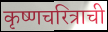
कृष्णचरित्राची